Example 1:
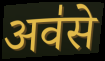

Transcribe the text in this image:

अव॑से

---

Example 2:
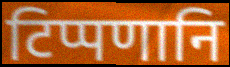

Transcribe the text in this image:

टिप्पणानि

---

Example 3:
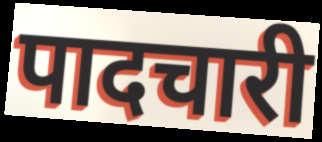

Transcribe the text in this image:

पादचारी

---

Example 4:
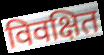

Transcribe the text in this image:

विवक्षित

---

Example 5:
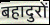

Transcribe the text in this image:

बहादुरों